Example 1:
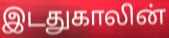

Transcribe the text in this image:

இடதுகாலின்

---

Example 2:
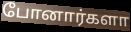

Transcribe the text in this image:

போனார்களா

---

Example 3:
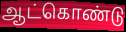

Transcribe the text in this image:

ஆட்கொண்டு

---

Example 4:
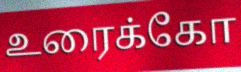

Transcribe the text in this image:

உரைக்கோ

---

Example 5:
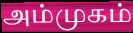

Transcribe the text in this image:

அம்முகம்